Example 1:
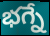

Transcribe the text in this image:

భగ్నే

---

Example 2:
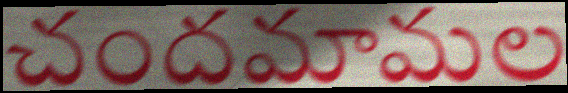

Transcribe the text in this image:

చందమామల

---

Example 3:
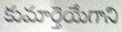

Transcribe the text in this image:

కుమార్తెయేగాని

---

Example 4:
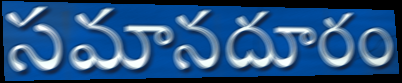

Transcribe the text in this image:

సమానదూరం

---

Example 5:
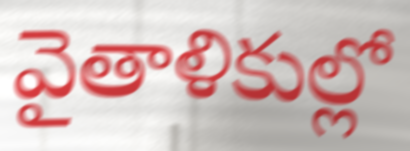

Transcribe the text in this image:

వైతాళికుల్లో